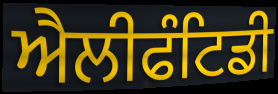
ਐਲੀਫੰਟਿਡੀ